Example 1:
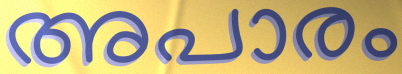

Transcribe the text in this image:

അപാരം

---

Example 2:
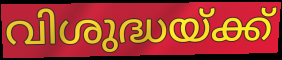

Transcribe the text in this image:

വിശുദ്ധയ്ക്ക്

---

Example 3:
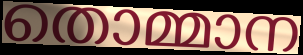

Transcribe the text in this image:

തൊമ്മാന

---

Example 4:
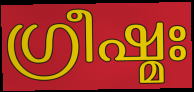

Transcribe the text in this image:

ഗ്രീഷ്മഃ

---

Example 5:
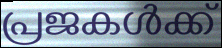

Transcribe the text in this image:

പ്രജകൾക്ക്